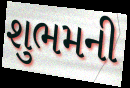
શુભમની